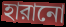
হারানো